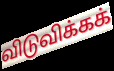
விடுவிக்கக்